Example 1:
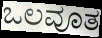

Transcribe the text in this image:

ಒಲವೂತ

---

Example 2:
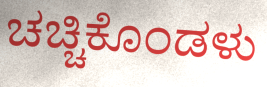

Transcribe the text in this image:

ಚಚ್ಚಿಕೊಂಡಳು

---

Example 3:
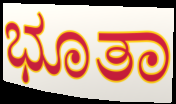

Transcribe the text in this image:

ಭೂತಾ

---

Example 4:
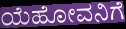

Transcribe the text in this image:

ಯೆಹೋವನಿಗೆ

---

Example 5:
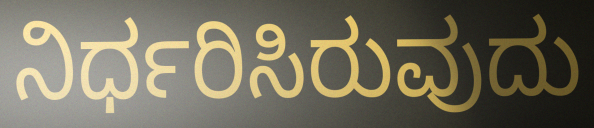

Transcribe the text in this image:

ನಿರ್ಧರಿಸಿರುವುದು